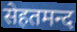
सेहतमन्द